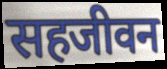
सहजीवन